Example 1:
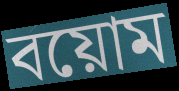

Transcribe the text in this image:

বয়োম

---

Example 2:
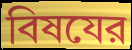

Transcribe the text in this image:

বিষযের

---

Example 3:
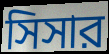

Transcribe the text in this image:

সিসার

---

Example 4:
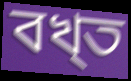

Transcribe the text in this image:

বখ্ত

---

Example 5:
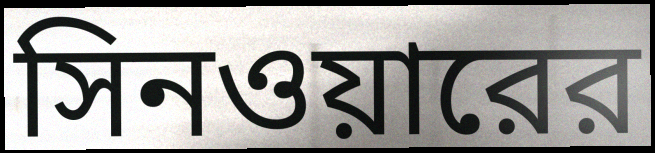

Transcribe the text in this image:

সিনওয়ারের